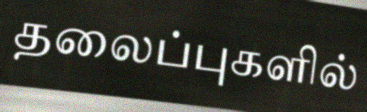
தலைப்புகளில்